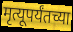
मृत्यूपर्यंतच्या